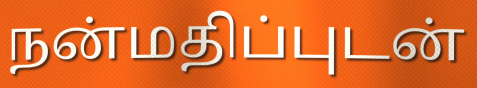
நன்மதிப்புடன்